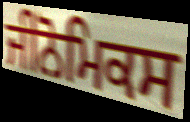
ਜੀਨੋਮਿਕਸ